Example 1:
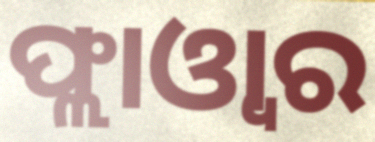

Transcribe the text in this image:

ଫ୍ଲାଓ୍ବାର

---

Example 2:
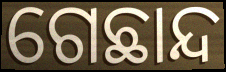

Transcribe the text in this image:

ଗେଛାନ୍ଦ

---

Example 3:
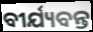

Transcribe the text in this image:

ବୀର୍ଯ୍ୟବନ୍ତ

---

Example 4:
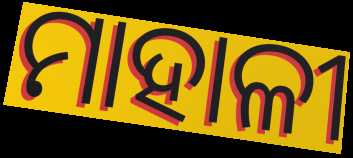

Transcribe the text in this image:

ମାହାଳୀ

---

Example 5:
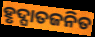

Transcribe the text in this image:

ହୃଦ୍ଘାତଜନିତ